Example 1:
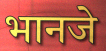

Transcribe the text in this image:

भानजे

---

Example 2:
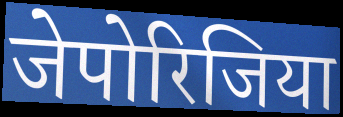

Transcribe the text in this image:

जेपोरिजिया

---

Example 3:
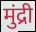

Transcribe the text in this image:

मुंद्री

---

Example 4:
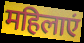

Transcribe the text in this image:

महिलाएं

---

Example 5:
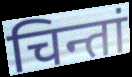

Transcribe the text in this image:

चिन्तां